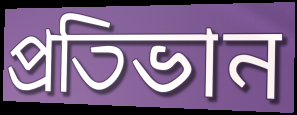
প্রতিভান